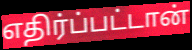
எதிர்ப்பட்டான்